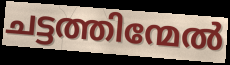
ചട്ടത്തിന്മേൽ